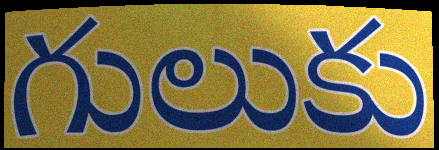
గులుకు